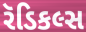
રૅડિકલ્સ